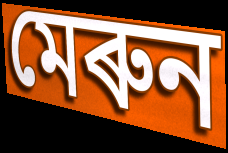
মেৰুন